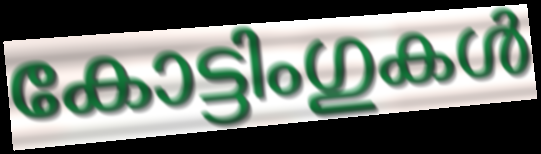
കോട്ടിംഗുകൾ